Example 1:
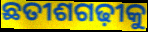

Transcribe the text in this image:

ଛତୀଶଗଢ଼ୀକୁ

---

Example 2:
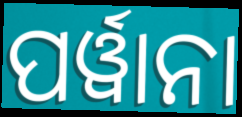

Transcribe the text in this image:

ପର୍ୱାନା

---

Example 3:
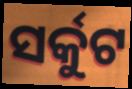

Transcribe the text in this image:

ସର୍କୁଟ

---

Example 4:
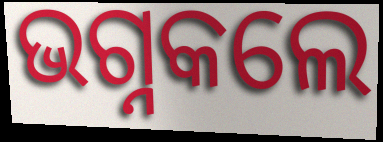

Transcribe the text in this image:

ଭଗ୍ନକଲେ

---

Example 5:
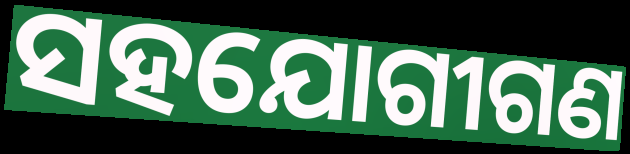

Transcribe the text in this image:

ସହଯୋଗୀଗଣ